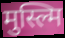
मुस्ल्मि